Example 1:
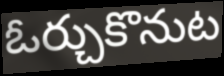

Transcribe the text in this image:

ఓర్చుకొనుట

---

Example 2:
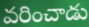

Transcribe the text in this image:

వరించాడు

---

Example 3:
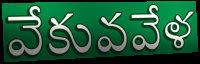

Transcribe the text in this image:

వేకువవేళ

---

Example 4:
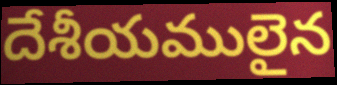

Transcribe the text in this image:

దేశీయములైన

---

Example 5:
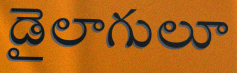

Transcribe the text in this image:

డైలాగులూ